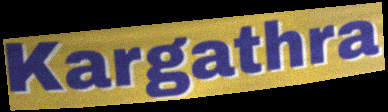
Kargathra